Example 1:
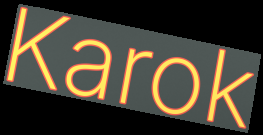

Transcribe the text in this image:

Karok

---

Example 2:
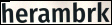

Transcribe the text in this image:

herambrk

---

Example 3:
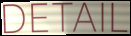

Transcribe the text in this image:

DETAIL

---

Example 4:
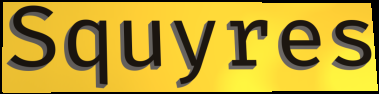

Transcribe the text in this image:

Squyres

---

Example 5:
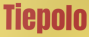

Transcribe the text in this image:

Tiepolo